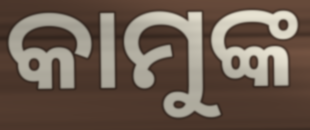
କାମୁଙ୍କ